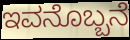
ಇವನೊಬ್ಬನೆ